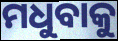
ମଧୁବାକୁ